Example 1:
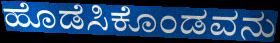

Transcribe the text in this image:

ಹೊಡೆಸಿಕೊಂಡವನು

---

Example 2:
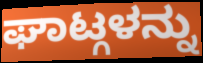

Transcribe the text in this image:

ಘಾಟ್ಗಳನ್ನು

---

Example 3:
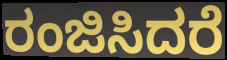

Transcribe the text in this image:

ರಂಜಿಸಿದರೆ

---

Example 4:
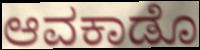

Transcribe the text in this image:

ಆವಕಾಡೊ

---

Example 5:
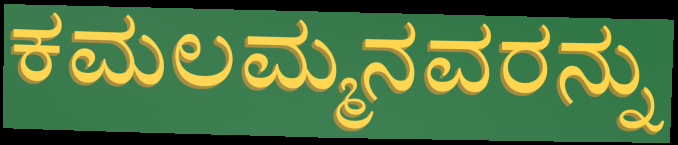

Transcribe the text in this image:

ಕಮಲಮ್ಮನವರನ್ನು